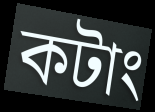
কটাং